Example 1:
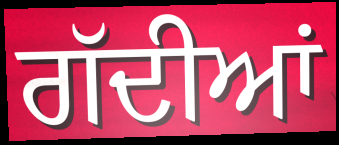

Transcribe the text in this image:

ਗੱਦੀਆਂ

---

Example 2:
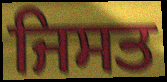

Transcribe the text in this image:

ਜਿਸਤ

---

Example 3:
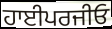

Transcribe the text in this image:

ਹਾਈਪਰਜੀਓ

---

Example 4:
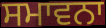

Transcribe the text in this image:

ਸਮਾਵਨਾ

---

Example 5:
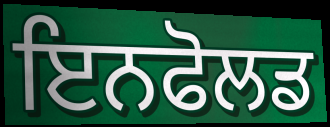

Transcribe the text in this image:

ਇਨਫੋਲਡ